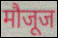
मौजूज